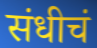
संधीचं